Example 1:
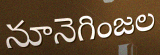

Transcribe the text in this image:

నూనెగింజల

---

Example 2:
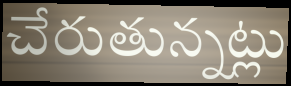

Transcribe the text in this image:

చేరుతున్నట్లు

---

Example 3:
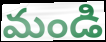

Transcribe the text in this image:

మండి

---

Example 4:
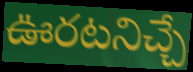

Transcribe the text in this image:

ఊరటనిచ్చే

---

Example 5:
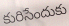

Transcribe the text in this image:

కురిసేందుకు